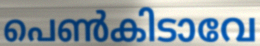
പെൺകിടാവേ